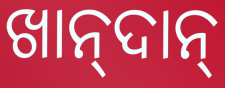
ଖାନ୍‍ଦାନ୍